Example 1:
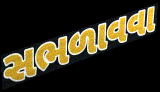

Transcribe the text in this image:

સભળાવવા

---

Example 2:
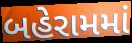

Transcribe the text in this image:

બહેરામમાં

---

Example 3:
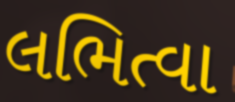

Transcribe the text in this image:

લભિત્વા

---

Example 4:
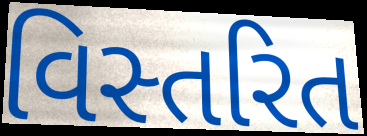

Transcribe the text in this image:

વિસ્તરિત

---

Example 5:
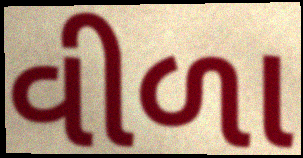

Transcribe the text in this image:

વીળા